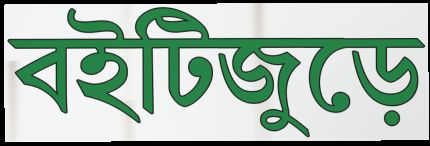
বইটিজুড়ে